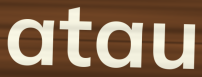
atau